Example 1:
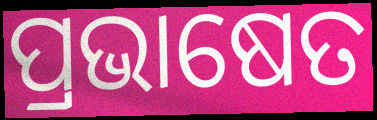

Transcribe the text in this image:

ପ୍ରଭାଷେତ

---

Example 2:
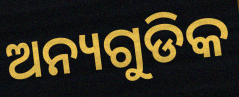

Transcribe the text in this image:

ଅନ୍ୟଗୁଡିକ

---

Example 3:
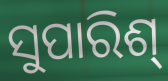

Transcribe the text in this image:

ସୁପାରିଶ୍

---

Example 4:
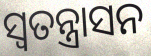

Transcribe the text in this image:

ସ୍ଵତନ୍ତ୍ରାସନ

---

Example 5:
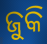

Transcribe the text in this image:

ଜୁକି